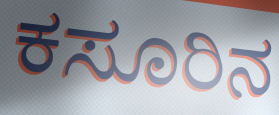
ಕಸೂರಿನ